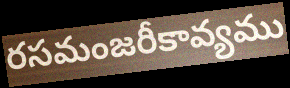
రసమంజరీకావ్యము